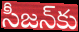
సీజన్‌కు